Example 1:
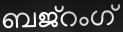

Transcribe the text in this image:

ബജ്റംഗ്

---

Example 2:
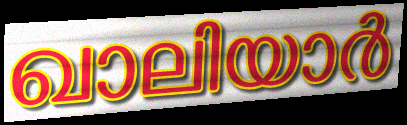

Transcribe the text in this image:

ഖാലിയാർ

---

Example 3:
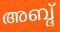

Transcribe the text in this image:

അബ്ദ്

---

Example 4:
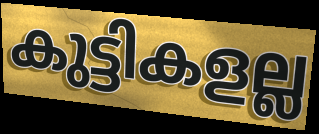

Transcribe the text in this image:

കുട്ടികളല്ല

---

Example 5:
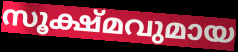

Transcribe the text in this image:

സൂക്ഷ്മവുമായ